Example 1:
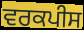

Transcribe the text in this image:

ਵਰਕਪੀਸ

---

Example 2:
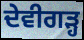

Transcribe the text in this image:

ਦੇਵੀਗੜ੍ਹ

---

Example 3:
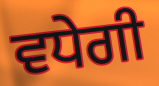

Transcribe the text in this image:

ਵਧੇਗੀ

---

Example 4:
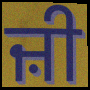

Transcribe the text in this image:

ਜ਼ੀ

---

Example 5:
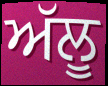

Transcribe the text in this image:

ਅੱਲੂ